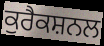
ਕੁਰੈਕਸ਼ਨਲ